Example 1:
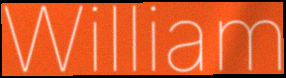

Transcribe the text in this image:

William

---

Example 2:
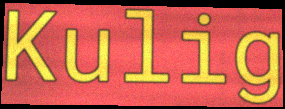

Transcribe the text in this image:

Kulig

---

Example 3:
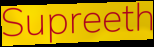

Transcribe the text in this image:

Supreeth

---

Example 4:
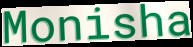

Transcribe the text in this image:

Monisha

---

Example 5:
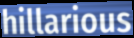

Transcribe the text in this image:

hillarious